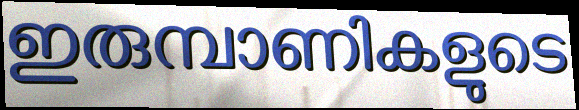
ഇരുമ്പാണികളുടെ